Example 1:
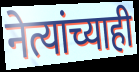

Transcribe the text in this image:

नेत्यांच्याही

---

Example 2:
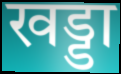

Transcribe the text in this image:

खड्डा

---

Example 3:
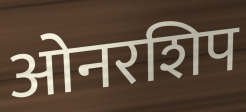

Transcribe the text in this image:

ओनरशिप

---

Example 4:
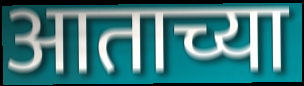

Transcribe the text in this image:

आताच्या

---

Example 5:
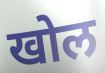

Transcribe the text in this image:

खोल